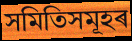
সমিতিসমূহৰ